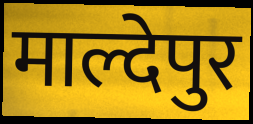
माल्देपुर